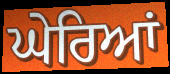
ਘੇਰਿਆਂ